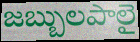
జబ్బులపాలై